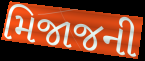
મિજાજની